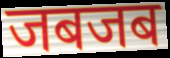
जबजब